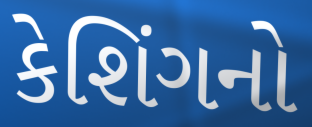
કેશિંગનો